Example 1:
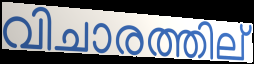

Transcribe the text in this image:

വിചാരത്തില്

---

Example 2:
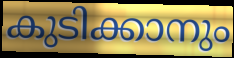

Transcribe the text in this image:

കുടിക്കാനും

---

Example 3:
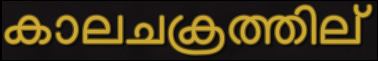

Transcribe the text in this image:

കാലചക്രത്തില്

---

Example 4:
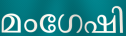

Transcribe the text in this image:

മംഗേഷി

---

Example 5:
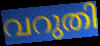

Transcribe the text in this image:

വറുതി